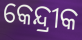
କେନ୍ଦ୍ରୀକ